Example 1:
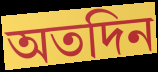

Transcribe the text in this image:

অতদিন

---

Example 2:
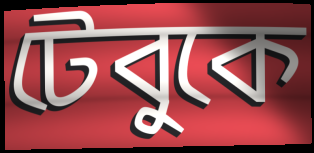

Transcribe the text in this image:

টেবুকে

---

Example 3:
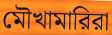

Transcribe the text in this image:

মৌখামারিরা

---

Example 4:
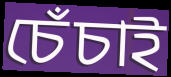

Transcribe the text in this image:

চেঁচাই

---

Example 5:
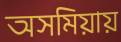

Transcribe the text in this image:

অসমিয়ায়